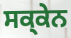
ਸਕ੍ਕੇਨ